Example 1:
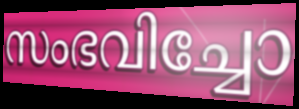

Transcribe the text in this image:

സംഭവിച്ചോ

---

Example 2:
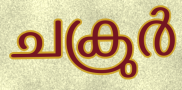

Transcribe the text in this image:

ചക്രുർ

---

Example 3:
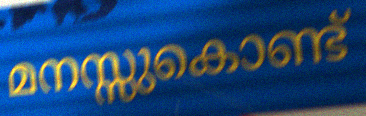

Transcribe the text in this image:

മനസ്സുകൊണ്ട്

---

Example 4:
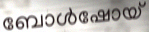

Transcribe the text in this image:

ബോൾഷോയ്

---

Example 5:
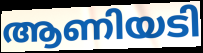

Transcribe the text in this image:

ആണിയടി